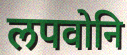
लपवोनि